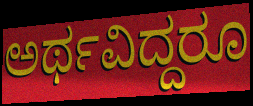
ಅರ್ಥವಿದ್ದರೂ